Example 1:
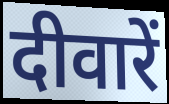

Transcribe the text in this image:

दीवारें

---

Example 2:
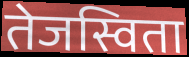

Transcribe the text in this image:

तेजस्विता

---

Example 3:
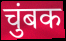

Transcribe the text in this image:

चुंबक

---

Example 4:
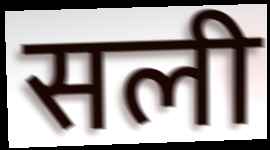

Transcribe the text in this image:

सली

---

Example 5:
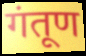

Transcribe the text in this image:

गंतूण